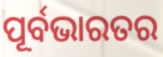
ପୂର୍ବଭାରତର